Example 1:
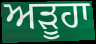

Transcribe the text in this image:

ਅੜੂਹਾ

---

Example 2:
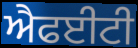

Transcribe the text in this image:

ਐਫਈਟੀ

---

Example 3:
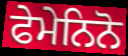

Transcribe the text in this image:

ਫੇਮੇਨਿਨੋ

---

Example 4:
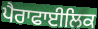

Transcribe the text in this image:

ਪੈਰਾਫਾਈਲਿਕ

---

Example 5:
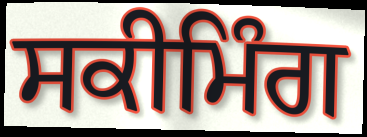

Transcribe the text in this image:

ਸਕੀਮਿੰਗ